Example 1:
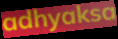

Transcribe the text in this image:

adhyaksa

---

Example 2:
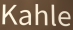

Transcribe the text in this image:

Kahle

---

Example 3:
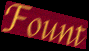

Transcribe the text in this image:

Fount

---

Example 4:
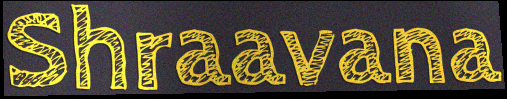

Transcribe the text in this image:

Shraavana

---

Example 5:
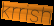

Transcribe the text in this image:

krrish